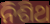
ନିଶିଥ